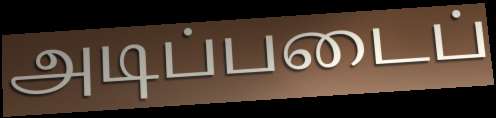
அடிப்படைப்